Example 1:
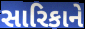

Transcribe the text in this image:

સારિકાને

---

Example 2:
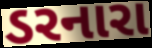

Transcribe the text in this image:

ડરનારા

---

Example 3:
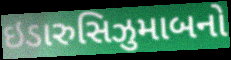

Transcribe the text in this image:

ઇડારુસિઝુમાબનો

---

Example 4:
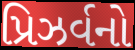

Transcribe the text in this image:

પ્રિઝર્વનો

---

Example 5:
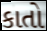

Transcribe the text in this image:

કાતો